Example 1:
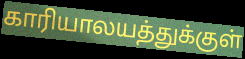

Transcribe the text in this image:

காரியாலயத்துக்குள்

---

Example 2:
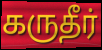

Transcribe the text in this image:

கருதீர்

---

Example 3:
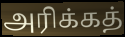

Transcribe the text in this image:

அரிக்கத்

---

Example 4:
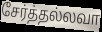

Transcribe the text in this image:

சேர்த்தல்லவா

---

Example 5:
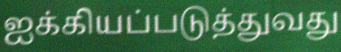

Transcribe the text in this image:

ஐக்கியப்படுத்துவது